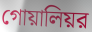
গোয়ালিয়র